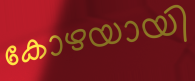
കോഴയായി